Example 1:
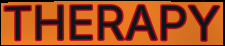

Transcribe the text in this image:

THERAPY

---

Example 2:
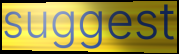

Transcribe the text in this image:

suggest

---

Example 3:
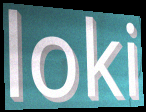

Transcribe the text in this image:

loki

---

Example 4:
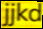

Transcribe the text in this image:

jjkd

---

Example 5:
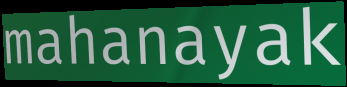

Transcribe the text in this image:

mahanayak